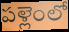
పళ్లెంలో